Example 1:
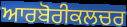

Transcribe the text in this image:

ਆਰਬੋਰੀਕਲਚਰ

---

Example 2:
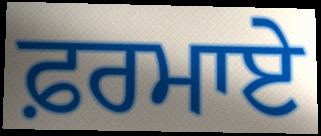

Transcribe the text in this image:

ਫ਼ਰਮਾਏ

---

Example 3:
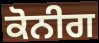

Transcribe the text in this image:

ਕੋਨੀਗ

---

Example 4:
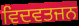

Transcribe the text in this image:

ਵਿਦਵਤਜਨ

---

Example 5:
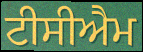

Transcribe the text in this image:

ਟੀਸੀਐਮ